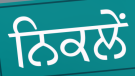
ਨਿਕਲੇਂ